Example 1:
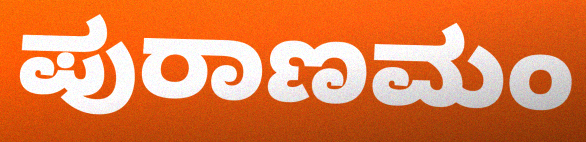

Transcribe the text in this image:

ಪುರಾಣಮಂ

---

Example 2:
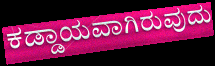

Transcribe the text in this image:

ಕಡ್ಡಾಯವಾಗಿರುವುದು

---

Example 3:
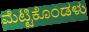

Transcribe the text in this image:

ಮೆಟ್ಟಿಕೊಂಡಳು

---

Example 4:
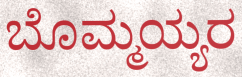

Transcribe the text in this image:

ಬೊಮ್ಮಯ್ಯರ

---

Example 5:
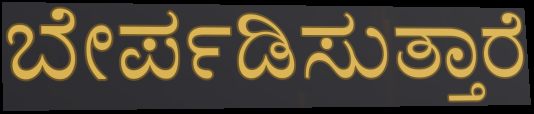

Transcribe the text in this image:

ಬೇರ್ಪಡಿಸುತ್ತಾರೆ